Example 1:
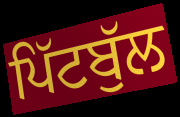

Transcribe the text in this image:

ਪਿੱਟਬੁੱਲ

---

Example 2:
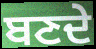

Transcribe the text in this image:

ਬਣਦੇ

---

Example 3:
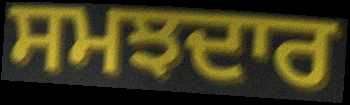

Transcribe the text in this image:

ਸਮਝਦਾਰ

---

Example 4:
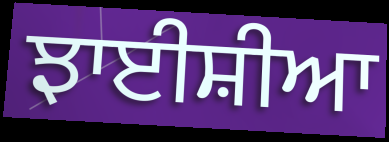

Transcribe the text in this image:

ਝਾਈਸ਼ੀਆ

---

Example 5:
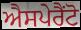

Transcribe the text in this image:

ਐਸਪੇਰੈਂਟੋ